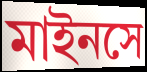
মাইনসে